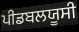
ਪੀਡਬਲਯੂਸੀ